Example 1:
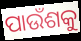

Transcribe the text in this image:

ପାଉଁଶକୁ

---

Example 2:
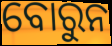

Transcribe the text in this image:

ବୋରୁନ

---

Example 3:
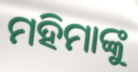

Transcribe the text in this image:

ମହିମାଙ୍କୁ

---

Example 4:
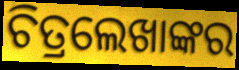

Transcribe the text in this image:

ଚିତ୍ରଲେଖାଙ୍କର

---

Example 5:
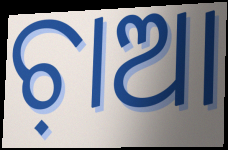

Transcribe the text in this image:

ଚ଼ାଆ